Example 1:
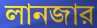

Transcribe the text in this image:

লানজার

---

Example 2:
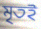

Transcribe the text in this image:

মৃতই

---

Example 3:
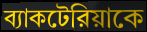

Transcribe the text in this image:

ব্যাকটেরিয়াকে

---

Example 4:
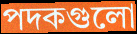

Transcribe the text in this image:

পদকগুলো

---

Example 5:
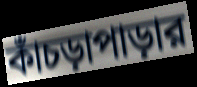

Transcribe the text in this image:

কাঁচড়াপাড়ার